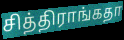
சித்திராங்கதா